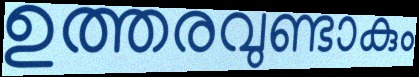
ഉത്തരവുണ്ടാകും